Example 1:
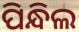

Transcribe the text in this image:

ପିନ୍ଧିଲ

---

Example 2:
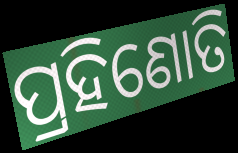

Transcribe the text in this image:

ପ୍ରହିଣୋତି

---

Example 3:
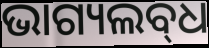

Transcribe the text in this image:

ଭାଗ୍ୟଲବ୍‌ଧ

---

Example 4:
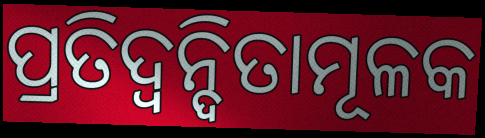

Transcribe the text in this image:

ପ୍ରତିଦ୍ୱନ୍ଦିତାମୂଳକ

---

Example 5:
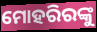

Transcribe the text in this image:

ମୋହରିରଙ୍କୁ